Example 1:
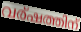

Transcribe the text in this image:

വര്ഷത്തിന്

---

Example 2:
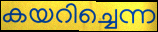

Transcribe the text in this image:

കയറിച്ചെന്ന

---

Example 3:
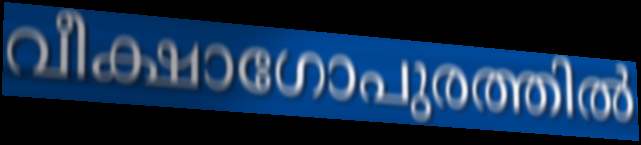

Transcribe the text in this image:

വീക്ഷാഗോപുരത്തിൽ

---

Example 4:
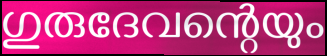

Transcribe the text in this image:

ഗുരുദേവന്റെയും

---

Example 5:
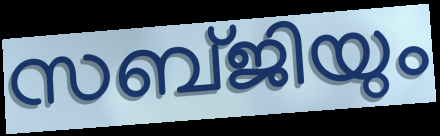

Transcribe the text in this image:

സബ്ജിയും